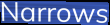
Narrows